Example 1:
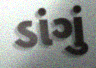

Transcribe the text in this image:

ડાંગું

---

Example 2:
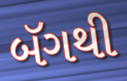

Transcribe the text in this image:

બૅગથી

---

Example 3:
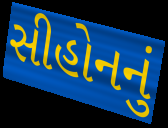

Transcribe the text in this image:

સીહોનનું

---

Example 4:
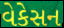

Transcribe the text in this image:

વેકેસન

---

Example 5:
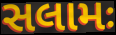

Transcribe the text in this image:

સલામઃ